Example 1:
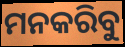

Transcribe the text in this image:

ମନକରିବୁ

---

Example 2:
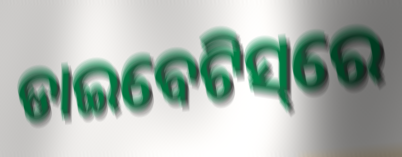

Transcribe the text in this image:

ଡାଇବେଟିସ୍‌ରେ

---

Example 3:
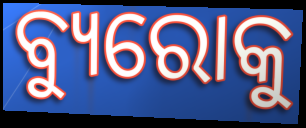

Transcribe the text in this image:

ବ୍ୟୁରୋକୁ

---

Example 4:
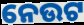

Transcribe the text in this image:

ନେଉଟ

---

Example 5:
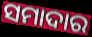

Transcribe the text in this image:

ସମାଦାର